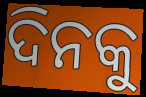
ଦିନକୁ